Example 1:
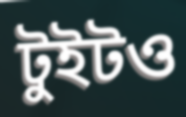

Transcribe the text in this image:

টুইটও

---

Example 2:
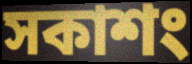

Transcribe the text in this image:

সকাশং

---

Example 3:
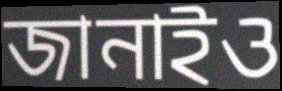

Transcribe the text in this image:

জানাইও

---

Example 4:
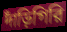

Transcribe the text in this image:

দাঁড়িগিরি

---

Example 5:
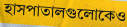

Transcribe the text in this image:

হাসপাতালগুলোকেও